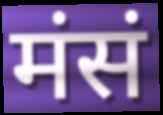
मंसं